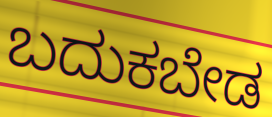
ಬದುಕಬೇಡ